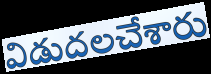
విడుదలచేశారు